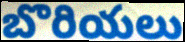
బొరియలు